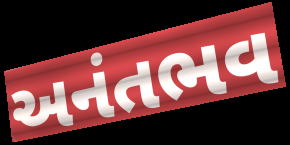
અનંતભવ